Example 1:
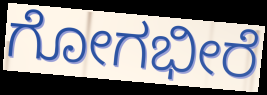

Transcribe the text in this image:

ಗೋಗಭೀರೆ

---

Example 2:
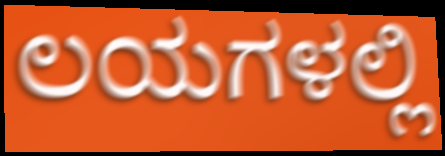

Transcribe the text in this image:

ಲಯಗಳಲ್ಲಿ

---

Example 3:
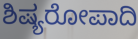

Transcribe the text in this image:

ಶಿಷ್ಯರೋಪಾದಿ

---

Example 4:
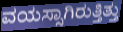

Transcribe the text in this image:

ವಯಸ್ಸಾಗಿರುತ್ತಿತ್ತು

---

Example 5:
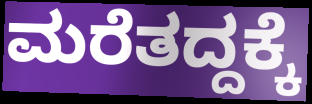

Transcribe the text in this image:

ಮರೆತದ್ದಕ್ಕೆ